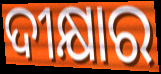
ଦୀକ୍ଷାର